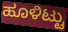
ಹೂಳಿಟ್ಟು